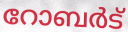
റോബർട്